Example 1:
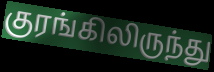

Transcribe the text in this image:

குரங்கிலிருந்து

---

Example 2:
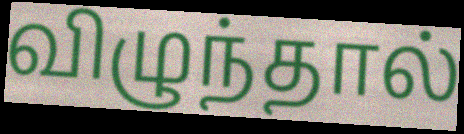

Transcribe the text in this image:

விழுந்தால்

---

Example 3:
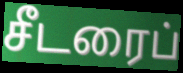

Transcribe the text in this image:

சீடரைப்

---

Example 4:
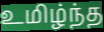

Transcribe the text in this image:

உமிழ்ந்த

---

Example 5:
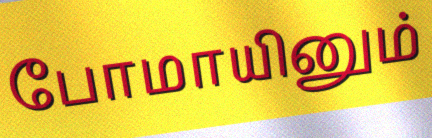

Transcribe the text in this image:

போமாயினும்